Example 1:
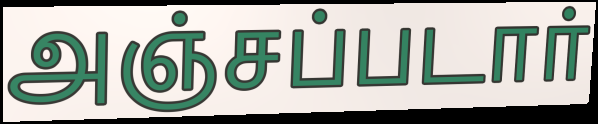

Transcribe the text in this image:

அஞ்சப்படார்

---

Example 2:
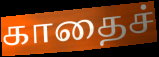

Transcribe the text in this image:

காதைச்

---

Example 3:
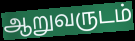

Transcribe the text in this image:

ஆறுவருடம்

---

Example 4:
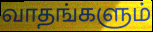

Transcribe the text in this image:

வாதங்களும்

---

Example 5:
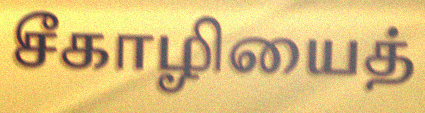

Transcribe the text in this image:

சீகாழியைத்